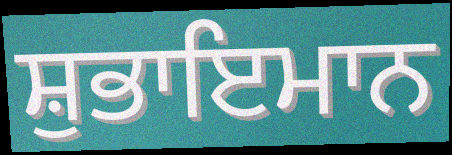
ਸ਼ੁਭਾਇਮਾਨ